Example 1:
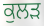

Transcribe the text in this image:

ਕੁਲੜ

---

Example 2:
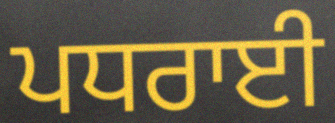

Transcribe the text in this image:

ਪਧਰਾਈ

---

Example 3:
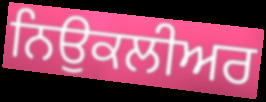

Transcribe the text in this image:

ਨਿਉਕਲੀਅਰ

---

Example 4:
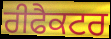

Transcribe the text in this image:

ਰੀਫੈਕਟਰ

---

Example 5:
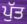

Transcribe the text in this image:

ਪੁੱਤ